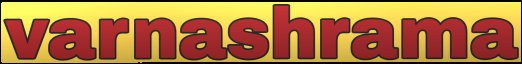
varnashrama